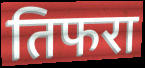
तिफरा